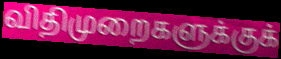
விதிமுறைகளுக்குக்